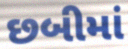
છબીમાં